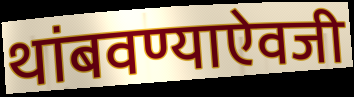
थांबवण्याऐवजी